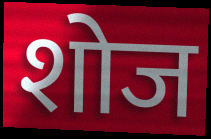
शोज